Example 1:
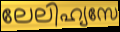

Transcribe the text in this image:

ലേലിഹ്യസേ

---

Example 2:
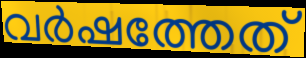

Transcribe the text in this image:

വർഷത്തേത്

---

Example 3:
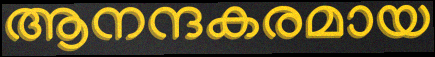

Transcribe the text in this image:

ആനന്ദകരമായ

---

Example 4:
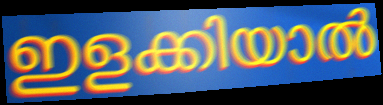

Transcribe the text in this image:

ഇളക്കിയാൽ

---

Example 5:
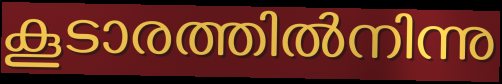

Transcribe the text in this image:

കൂടാരത്തിൽനിന്നു